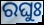
ରଘୁଃ